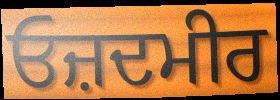
ਓਜ਼ਦਮੀਰ